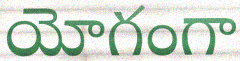
యోగంగా